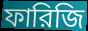
ফারিজি